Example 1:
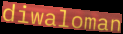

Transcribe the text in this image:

diwaloman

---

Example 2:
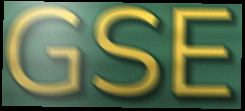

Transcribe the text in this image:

GSE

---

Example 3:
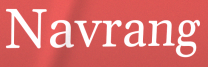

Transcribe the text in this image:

Navrang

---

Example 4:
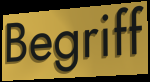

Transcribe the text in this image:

Begriff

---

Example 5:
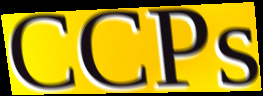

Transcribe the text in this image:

CCPs